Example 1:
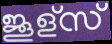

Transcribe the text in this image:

ജൂള്സ്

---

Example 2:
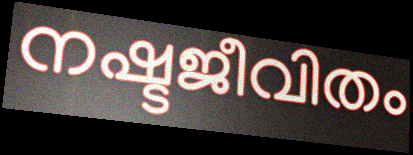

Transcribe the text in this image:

നഷ്ടജീവിതം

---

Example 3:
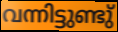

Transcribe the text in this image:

വന്നിട്ടുണ്ടു്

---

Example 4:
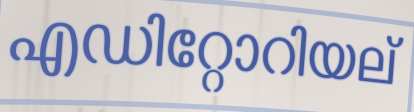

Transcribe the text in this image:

എഡിറ്റോറിയല്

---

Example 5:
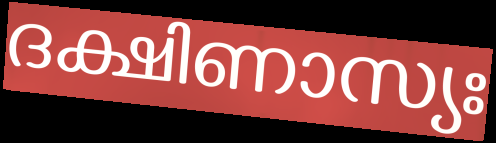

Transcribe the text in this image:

ദക്ഷിണാസ്യഃ